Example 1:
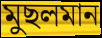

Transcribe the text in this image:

মুছলমান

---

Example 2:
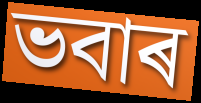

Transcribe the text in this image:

ভবাৰ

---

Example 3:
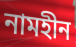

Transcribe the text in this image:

নামহীন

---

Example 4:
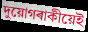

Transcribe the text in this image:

দুয়োগৰাকীয়েই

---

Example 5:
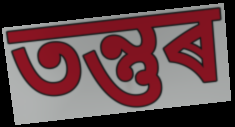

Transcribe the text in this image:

তন্তুৰ